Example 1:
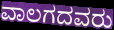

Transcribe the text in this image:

ವಾಲಗದವರು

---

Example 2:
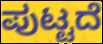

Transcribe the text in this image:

ಪುಟ್ಟದೆ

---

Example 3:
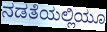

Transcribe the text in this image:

ನಡತೆಯಲ್ಲಿಯೂ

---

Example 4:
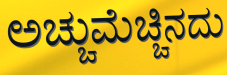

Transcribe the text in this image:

ಅಚ್ಚುಮೆಚ್ಚಿನದು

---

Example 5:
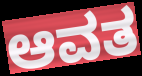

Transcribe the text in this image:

ಆವತ